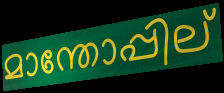
മാന്തോപ്പില്